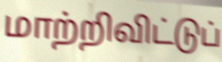
மாற்றிவிட்டுப்